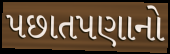
પછાતપણાનો